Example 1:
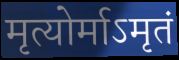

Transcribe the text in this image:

मृत्योर्माऽमृतं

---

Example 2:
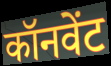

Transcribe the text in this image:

कॉनवेंट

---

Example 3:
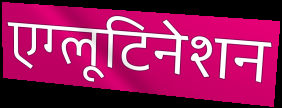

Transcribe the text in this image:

एग्लूटिनेशन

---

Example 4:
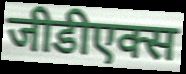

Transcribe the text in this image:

जीडीएक्स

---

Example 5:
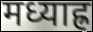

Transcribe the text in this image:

मध्याह्र